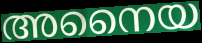
അനൈയ